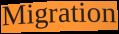
Migration